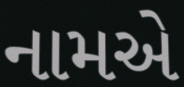
નામએ